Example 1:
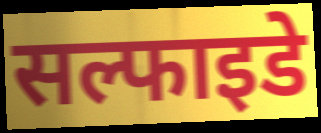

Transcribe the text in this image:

सल्फाइडे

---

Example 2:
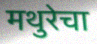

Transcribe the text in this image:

मथुरेचा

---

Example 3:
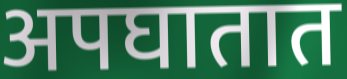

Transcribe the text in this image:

अपघातात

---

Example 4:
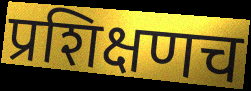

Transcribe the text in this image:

प्रशिक्षणच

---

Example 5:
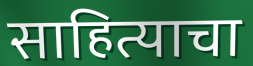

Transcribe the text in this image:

साहित्याचा